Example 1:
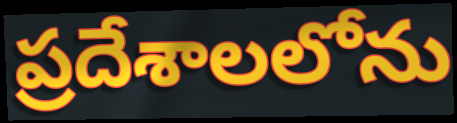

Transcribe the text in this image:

ప్రదేశాలలోను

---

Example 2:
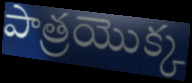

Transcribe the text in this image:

పాత్రయొక్క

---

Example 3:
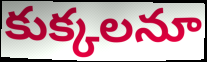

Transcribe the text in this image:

కుక్కలనూ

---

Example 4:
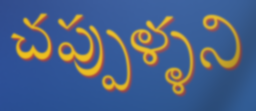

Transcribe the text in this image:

చప్పుళ్ళని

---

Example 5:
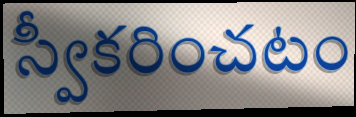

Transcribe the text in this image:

స్వీకరించటం